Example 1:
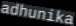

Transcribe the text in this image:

adhunika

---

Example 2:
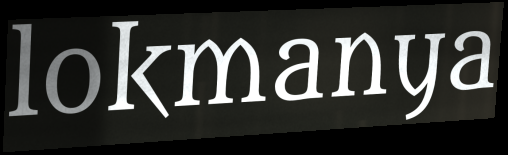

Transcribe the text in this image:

lokmanya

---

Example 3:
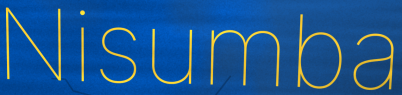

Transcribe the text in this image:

Nisumba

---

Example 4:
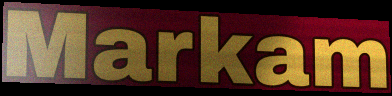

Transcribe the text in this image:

Markam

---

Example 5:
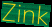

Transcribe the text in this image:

Zink